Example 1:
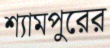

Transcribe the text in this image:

শ্যামপুরের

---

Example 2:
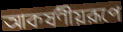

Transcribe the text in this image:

আকর্ষণীয়রূপে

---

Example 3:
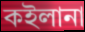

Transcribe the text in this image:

কইলানা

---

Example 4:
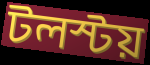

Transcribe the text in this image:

টলস্টয়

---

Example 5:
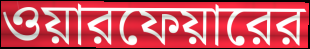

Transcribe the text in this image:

ওয়ারফেয়ারের